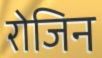
रोजिन